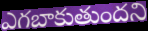
ఎగబాకుతుందని